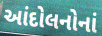
આંદોલનોનાં